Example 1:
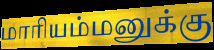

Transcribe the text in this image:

மாரியம்மனுக்கு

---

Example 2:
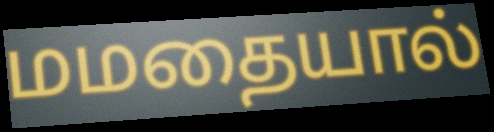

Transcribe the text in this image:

மமதையால்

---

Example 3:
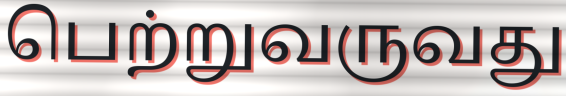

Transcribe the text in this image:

பெற்றுவருவது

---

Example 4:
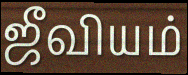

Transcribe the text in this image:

ஜீவியம்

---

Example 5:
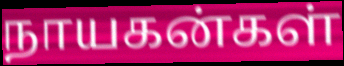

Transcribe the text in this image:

நாயகன்கள்